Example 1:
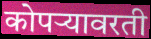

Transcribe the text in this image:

कोपऱ्यावरती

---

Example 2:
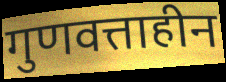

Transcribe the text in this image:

गुणवत्ताहीन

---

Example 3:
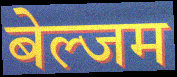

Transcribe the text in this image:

बेल्जम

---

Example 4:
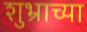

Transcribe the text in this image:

शुभ्राच्या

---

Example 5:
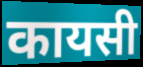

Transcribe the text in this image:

कायसी